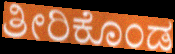
ತೀರಿಕೊಂಡ